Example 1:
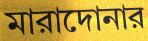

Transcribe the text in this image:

মারাদোনার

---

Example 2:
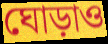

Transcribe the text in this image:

ঘোড়াও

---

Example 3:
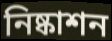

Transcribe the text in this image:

নিষ্কাশন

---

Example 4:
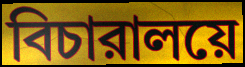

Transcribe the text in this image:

বিচারালয়ে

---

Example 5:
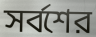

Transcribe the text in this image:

সর্বশের